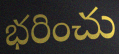
భరించు